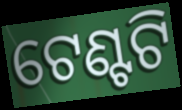
ଟେଣ୍ଟଟି